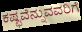
ಕಷ್ಟವೆನ್ನುವವರಿಗೆ